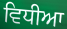
ਵਿਧੀਆ